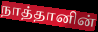
நாத்தானின்